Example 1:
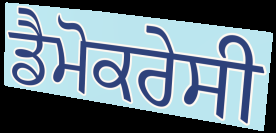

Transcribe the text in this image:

ਡੈਮੋਕਰੇਸੀ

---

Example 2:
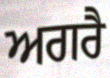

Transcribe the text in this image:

ਅਗਰੈ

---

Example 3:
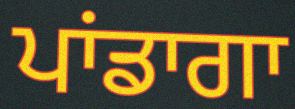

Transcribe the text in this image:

ਪਾਂਡਾਗਾ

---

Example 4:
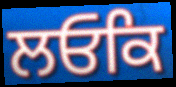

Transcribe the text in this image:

ਲਓਕਿ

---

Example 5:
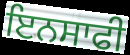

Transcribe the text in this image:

ਇਨਸਾਫੀ